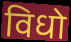
विधो